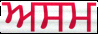
ਅਸਮ